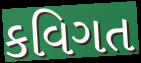
કવિગત